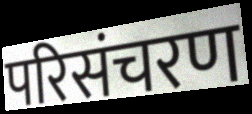
परिसंचरण